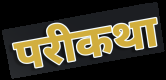
परीकथा